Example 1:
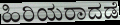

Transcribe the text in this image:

ಹಿರಿಯರಾದಡೆ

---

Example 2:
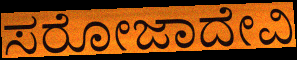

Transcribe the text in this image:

ಸರೋಜಾದೇವಿ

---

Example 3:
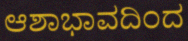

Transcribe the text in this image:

ಆಶಾಭಾವದಿಂದ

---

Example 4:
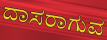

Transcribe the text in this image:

ದಾಸರಾಗುವ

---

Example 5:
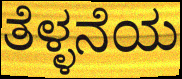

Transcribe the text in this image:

ತೆಳ್ಳನೆಯ